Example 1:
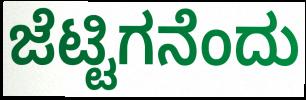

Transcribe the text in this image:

ಜೆಟ್ಟಿಗನೆಂದು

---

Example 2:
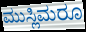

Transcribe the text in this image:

ಮುಸ್ಲಿಮರೂ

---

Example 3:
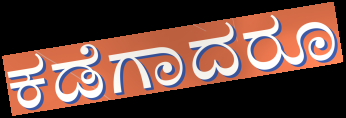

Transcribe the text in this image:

ಕಡೆಗಾದರೂ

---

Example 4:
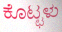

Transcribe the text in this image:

ಕೊಟ್ಟಳು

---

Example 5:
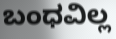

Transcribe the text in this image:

ಬಂಧವಿಲ್ಲ